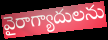
వైరాగ్యాదులను